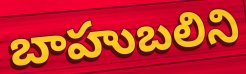
బాహుబలిని